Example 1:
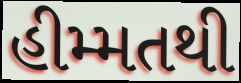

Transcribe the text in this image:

હીમ્મતથી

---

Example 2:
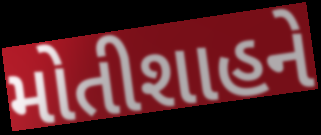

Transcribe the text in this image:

મોતીશાહને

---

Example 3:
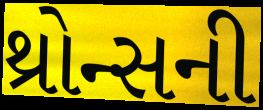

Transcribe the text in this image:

થ્રોન્સની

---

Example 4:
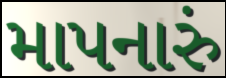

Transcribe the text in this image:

માપનારું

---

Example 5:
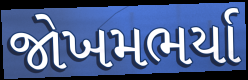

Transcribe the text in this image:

જોખમભર્યા